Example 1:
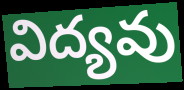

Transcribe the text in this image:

విద్యవు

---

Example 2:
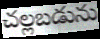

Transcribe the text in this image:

చల్లబడును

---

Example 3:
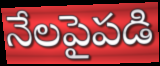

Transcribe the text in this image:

నేలపైపడి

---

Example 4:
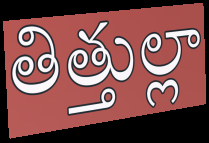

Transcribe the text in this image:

తిత్తుల్లా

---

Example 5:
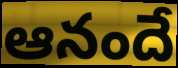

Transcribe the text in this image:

ఆనందే